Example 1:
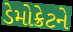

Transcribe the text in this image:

ડેમોક્રેટને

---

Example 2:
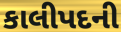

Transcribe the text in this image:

કાલીપદની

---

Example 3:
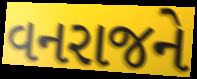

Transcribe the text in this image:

વનરાજને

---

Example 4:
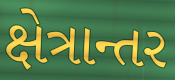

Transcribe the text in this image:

ક્ષેત્રાન્તર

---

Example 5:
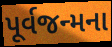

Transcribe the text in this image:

પૂર્વજન્મના